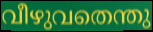
വീഴുവതെന്തു